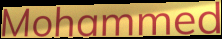
Mohammed